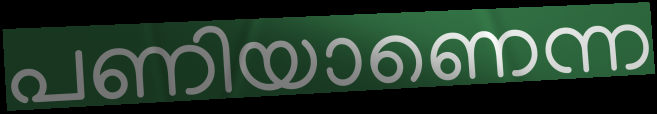
പണിയാണെന്ന